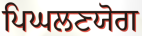
ਪਿਘਲਣਯੋਗ